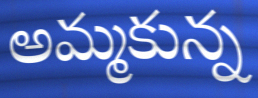
అమ్మకున్న